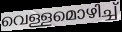
വെള്ളമൊഴിച്ച്